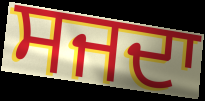
ਸਜਦਾ